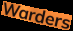
Warders